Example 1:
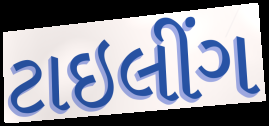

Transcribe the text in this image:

ટાઇલીંગ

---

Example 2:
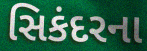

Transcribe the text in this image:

સિકંદરના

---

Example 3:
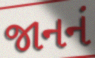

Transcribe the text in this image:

જાનનં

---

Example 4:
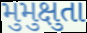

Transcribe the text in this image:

મુમુક્ષુતા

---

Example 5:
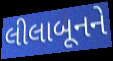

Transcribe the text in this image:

લીલાબૂનને